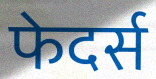
फेदर्स